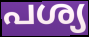
പശ്യ